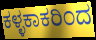
ಕಳ್ಳಕಾಕರಿಂದ